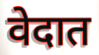
वेदात